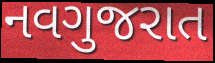
નવગુજરાત